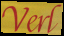
Verl